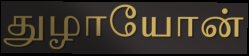
துழாயோன்